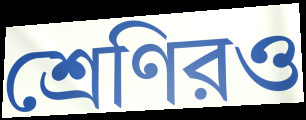
শ্রেণিরও